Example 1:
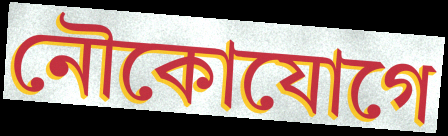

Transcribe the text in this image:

নৌকোযোগে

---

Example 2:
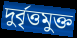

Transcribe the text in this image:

দুর্বৃত্তমুক্ত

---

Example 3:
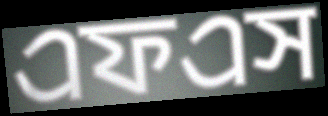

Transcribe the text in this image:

এফএস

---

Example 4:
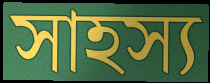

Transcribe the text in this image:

সাহস্য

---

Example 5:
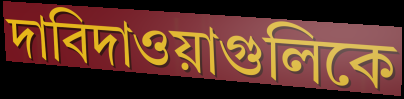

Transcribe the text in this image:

দাবিদাওয়াগুলিকে